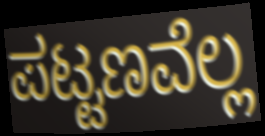
ಪಟ್ಟಣವೆಲ್ಲ